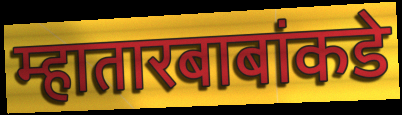
म्हातारबाबांकडे